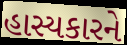
હાસ્યકારને